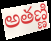
అతణ్ణి